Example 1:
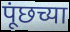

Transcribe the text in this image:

पूंछच्या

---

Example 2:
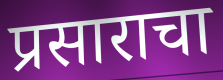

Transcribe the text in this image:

प्रसाराचा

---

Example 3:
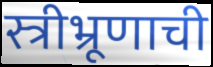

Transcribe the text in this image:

स्त्रीभ्रूणाची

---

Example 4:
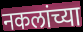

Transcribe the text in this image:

नकलांच्या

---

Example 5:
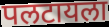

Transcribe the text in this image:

पलटायला